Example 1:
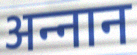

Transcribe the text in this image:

अन्नान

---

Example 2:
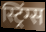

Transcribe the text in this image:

स्ट्रिंग्स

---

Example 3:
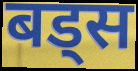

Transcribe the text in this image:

बड्स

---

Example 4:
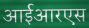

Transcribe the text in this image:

आईआरएस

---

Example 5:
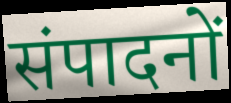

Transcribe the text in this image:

संपादनों